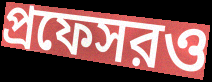
প্রফেসরও